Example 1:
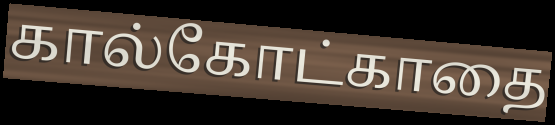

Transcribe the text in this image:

கால்கோட்காதை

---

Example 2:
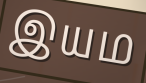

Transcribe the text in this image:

இயம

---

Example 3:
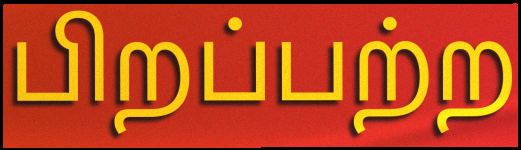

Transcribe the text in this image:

பிறப்பற்ற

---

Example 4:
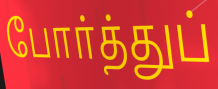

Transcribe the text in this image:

போர்த்துப்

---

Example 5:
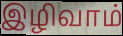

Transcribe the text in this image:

இழிவாம்